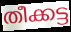
തീക്കട്ട